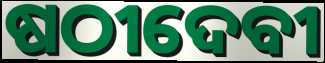
ଷଠୀଦେବୀ